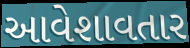
આવેશાવતાર